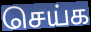
செய்க